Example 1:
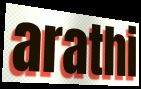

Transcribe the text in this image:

arathi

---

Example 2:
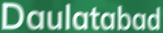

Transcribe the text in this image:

Daulatabad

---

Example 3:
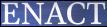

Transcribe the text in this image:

ENACT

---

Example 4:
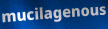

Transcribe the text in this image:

mucilagenous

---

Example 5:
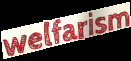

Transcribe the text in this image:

welfarism